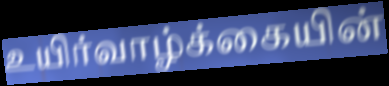
உயிர்வாழ்க்கையின்